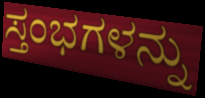
ಸ್ತಂಭಗಳನ್ನು